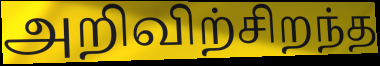
அறிவிற்சிறந்த